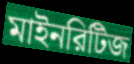
মাইনরিটিজ